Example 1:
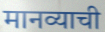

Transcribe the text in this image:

मानव्याची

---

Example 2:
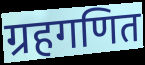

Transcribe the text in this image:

ग्रहगणित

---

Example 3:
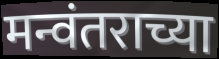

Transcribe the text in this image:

मन्वंतराच्या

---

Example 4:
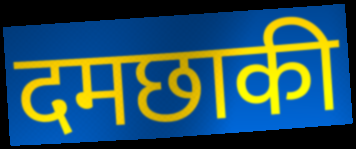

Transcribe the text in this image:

दमछाकी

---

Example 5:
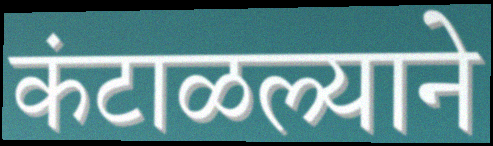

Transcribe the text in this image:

कंटाळल्याने